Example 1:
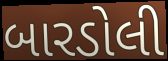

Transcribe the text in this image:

બારડોલી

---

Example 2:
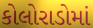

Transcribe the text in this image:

કોલોરાડોમાં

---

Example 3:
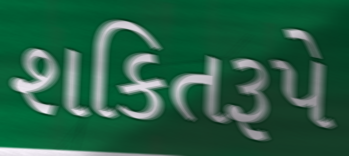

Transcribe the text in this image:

શકિતરૂપે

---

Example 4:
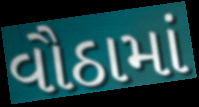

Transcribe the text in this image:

વૌઠામાં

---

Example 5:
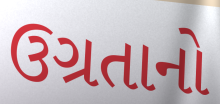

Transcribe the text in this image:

ઉગ્રતાનો